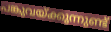
പങ്കുവയ്ക്കുന്നുണ്ട്